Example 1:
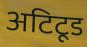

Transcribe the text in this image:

अटिटूड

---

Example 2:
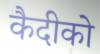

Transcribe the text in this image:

कैदीको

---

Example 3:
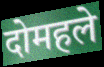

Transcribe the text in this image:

दोमहले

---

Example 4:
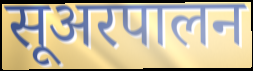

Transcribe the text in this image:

सूअरपालन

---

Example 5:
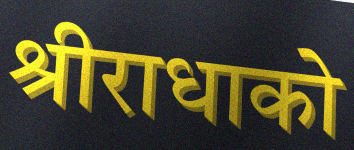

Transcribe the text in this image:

श्रीराधाको